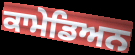
ਕਾਮੇਡਿਅਨ